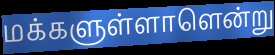
மக்களுள்ளாளென்று